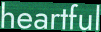
heartful